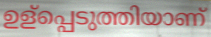
ഉള്പ്പെടുത്തിയാണ്